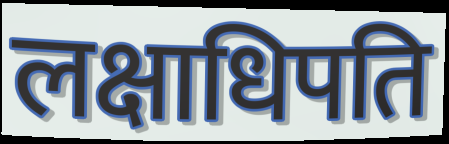
लक्षाधिपति